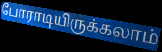
போராடியிருக்கலாம்